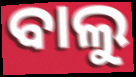
ବାଲୁ